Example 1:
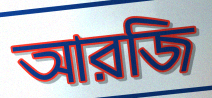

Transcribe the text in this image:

আরজি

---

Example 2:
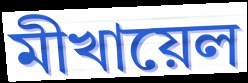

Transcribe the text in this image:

মীখায়েল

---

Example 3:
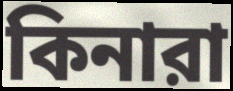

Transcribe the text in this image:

কিনারা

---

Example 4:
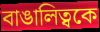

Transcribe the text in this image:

বাঙালিত্বকে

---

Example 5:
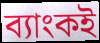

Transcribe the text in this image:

ব্যাংকই